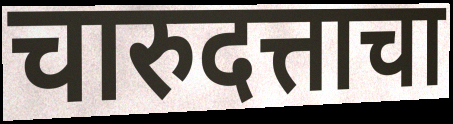
चारुदत्ताचा